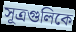
সূত্রগুলিকে